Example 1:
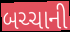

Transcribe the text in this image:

બચ્ચાની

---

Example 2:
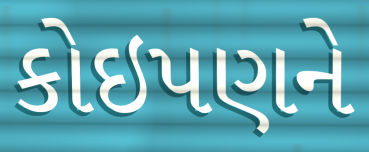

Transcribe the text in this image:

કોઇપણને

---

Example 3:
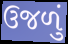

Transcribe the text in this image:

ઉજળું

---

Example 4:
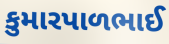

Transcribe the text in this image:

કુમારપાળભાઈ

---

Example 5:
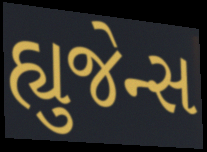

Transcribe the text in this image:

હ્યુજેન્સ